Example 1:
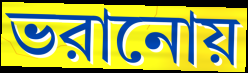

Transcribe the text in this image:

ভরানোয়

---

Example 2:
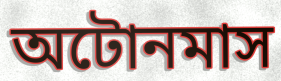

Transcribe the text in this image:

অটোনমাস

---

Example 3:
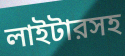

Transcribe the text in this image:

লাইটারসহ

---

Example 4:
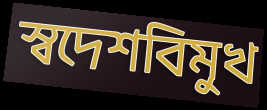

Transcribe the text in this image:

স্বদেশবিমুখ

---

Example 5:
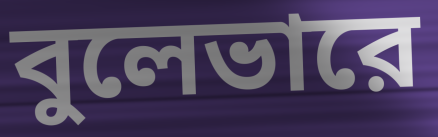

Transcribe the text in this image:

বুলেভারে